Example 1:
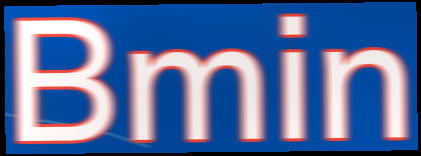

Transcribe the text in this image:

Bmin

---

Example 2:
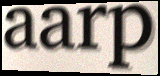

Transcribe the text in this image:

aarp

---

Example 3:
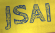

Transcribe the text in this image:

JSAI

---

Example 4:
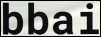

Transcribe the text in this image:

bbai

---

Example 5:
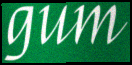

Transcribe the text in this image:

gum